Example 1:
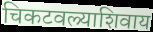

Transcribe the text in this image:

चिकटवल्याशिवाय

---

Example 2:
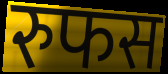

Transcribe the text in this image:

रुफस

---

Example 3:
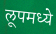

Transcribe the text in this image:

लूपमध्ये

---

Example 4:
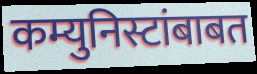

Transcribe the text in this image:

कम्युनिस्टांबाबत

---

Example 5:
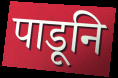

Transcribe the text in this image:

पाडूनि